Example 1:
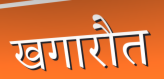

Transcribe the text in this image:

खगारौत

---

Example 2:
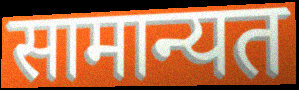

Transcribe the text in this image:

सामान्यत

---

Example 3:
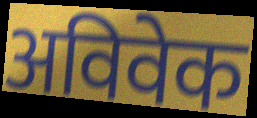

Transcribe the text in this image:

अविवेक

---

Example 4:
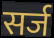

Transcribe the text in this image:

सर्ज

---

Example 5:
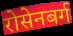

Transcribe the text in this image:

रोसेनबर्ग